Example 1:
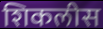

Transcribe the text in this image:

शिकलीस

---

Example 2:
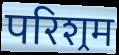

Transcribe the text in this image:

परिश्रम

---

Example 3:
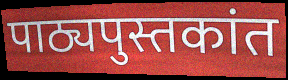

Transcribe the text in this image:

पाठ्यपुस्तकांत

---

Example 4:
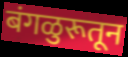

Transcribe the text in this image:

बंगळुरूतून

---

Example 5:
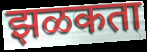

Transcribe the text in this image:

झळकता